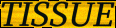
TISSUE